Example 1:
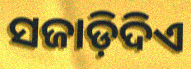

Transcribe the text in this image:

ସଜାଡ଼ିଦିଏ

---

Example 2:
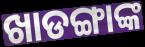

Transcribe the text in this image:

ଖାଡଙ୍ଗାଙ୍କ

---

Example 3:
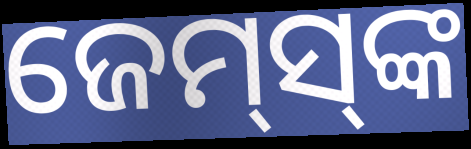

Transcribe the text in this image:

ଜେମ୍‌ସ୍‌ଙ୍କ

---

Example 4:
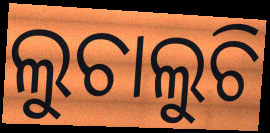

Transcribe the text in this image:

ଲୁଚାଲୁଚି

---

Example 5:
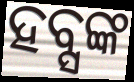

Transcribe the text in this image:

ହବ୍ସଙ୍କ